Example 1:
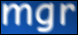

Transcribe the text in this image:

mgr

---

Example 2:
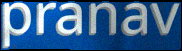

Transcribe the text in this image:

pranav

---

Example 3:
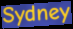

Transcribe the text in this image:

Sydney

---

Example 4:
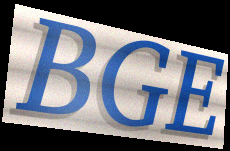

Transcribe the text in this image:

BGE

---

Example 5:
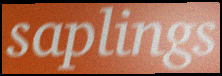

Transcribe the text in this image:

saplings